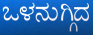
ಒಳನುಗ್ಗಿದ